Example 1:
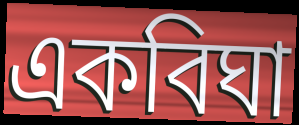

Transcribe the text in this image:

একবিঘা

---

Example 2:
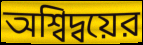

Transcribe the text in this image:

অশ্বিদ্বয়ের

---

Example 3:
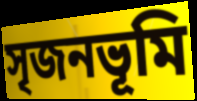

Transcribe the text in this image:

সৃজনভূমি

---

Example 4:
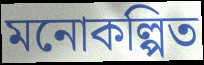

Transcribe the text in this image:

মনোকল্পিত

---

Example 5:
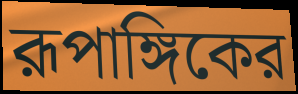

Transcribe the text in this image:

রূপাঙ্গিকের